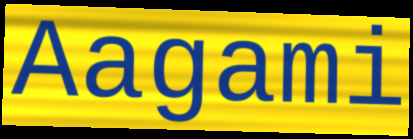
Aagami